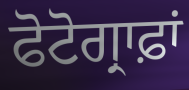
ਫੋਟੋਗ੍ਰਾਫ਼ਾਂ